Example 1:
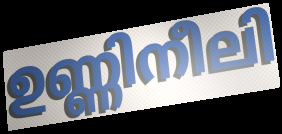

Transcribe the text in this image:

ഉണ്ണിനീലി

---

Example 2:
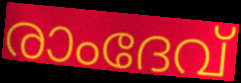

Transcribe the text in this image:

രാംദേവ്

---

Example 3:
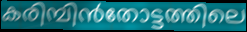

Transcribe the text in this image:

കരിമ്പിൻതോട്ടത്തിലെ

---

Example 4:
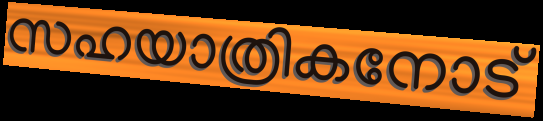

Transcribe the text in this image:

സഹയാത്രികനോട്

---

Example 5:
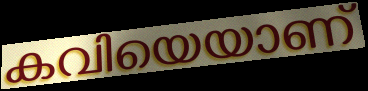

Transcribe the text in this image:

കവിയെയാണ്